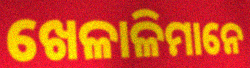
ଖେଳାଳିମାନେ